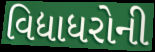
વિદ્યાધરોની